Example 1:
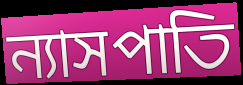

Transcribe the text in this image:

ন্যাসপাতি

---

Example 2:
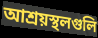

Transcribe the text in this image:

আশ্রয়স্থলগুলি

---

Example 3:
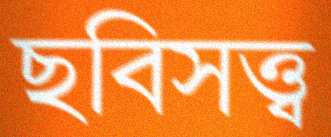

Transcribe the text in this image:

ছবিসত্ত্ব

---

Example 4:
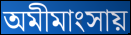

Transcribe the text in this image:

অমীমাংসায়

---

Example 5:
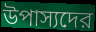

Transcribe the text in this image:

উপাস্যদের